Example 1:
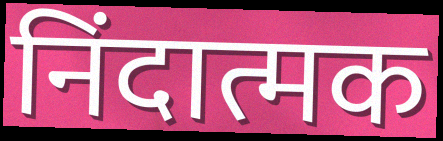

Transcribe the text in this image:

निंदात्मक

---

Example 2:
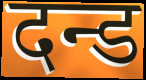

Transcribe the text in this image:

दन्ड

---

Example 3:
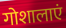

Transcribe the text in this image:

गोशालाएं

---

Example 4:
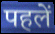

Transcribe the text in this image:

पहलें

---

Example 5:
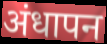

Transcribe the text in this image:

अंधापन